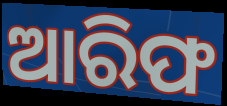
ଆରିଫ